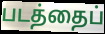
படத்தைப்